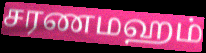
சரணமஹம்